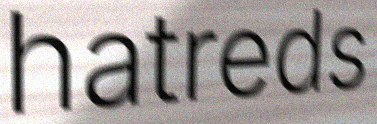
hatreds